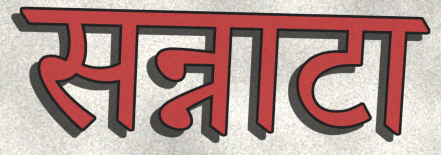
सन्नाटा